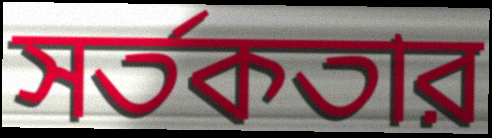
সর্তকতার